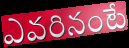
ఎవరినంటే